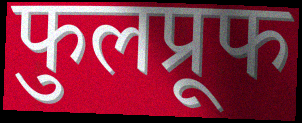
फुलप्रूफ